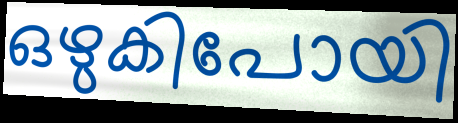
ഒഴുകിപോയി